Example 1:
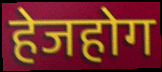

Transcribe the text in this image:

हेजहोग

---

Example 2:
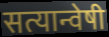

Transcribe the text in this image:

सत्यान्वेषी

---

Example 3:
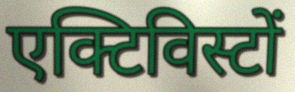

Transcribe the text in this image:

एक्टिविस्टों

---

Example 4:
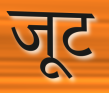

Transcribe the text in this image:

जूट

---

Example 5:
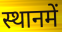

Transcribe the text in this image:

स्थानमें